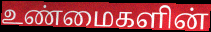
உண்மைகளின்